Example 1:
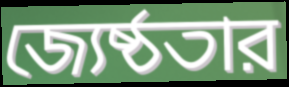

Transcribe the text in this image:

জ্যেষ্ঠতার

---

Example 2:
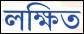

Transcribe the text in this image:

লক্ষিত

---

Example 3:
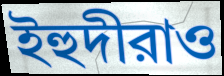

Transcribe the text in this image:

ইহুদীরাও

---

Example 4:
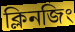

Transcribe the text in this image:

ক্লিনজিং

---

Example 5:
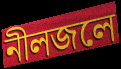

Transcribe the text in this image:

নীলজলে